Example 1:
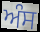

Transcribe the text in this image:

ਅੰਸ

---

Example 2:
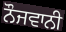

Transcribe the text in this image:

ਨੌਜਵਾਨੀ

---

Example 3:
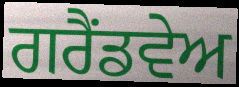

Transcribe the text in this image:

ਗਰੈਂਡਵੇਅ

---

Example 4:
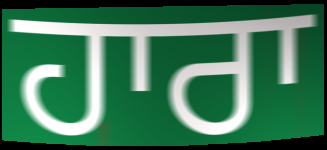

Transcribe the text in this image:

ਹਾਰਾ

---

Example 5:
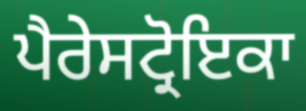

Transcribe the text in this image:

ਪੈਰੇਸਟ੍ਰੋਇਕਾ